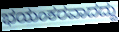
ಭಯಂಕರವಾದದ್ದು